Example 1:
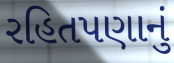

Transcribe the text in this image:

રહિતપણાનું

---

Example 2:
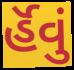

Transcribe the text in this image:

ર્હૅવું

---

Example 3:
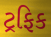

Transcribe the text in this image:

ટ્રફિક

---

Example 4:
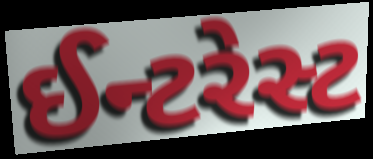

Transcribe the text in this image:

ઈન્ટરેસ્ટ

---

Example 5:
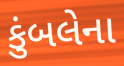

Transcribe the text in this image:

કુંબલેના